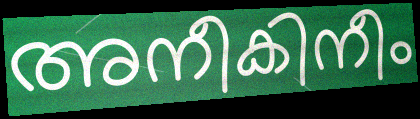
അനീകിനീം